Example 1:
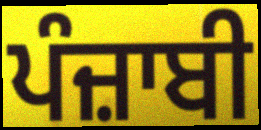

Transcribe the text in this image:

ਪੰਜ਼ਾਬੀ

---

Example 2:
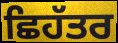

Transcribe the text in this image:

ਛਿਹੱਤਰ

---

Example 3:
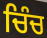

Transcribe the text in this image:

ਚਿੰਚ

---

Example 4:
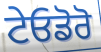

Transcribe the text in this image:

ਟੇਓਡੋਰੋ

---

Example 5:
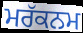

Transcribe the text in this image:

ਮਰੱਕਨਮ